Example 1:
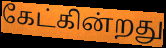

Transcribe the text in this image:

கேட்கின்றது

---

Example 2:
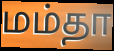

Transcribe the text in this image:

மம்தா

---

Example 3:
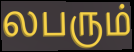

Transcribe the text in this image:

லபரும்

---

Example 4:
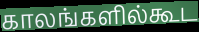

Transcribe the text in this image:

காலங்களில்கூட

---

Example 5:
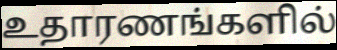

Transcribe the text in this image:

உதாரணங்களில்